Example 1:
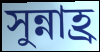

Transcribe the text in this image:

সুন্নাহ্র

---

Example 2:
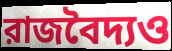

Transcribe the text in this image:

রাজবৈদ্যও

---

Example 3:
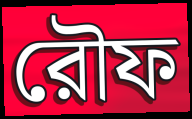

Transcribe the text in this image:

রৌফ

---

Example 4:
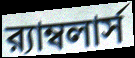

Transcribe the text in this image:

র‍্যাম্বলার্স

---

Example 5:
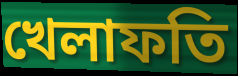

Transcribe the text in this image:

খেলাফতি